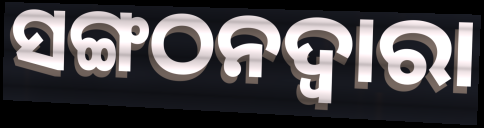
ସଙ୍ଗଠନଦ୍ୱାରା